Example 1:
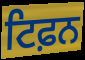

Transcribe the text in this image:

ਟਿਫ਼ਨ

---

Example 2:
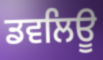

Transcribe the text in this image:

ਡਵਲਿਊ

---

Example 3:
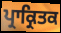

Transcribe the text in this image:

ਪ੍ਰਾਕ੍ਰਿਤਕ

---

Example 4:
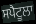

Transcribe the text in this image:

ਸਪੈਟੂਲਾ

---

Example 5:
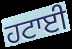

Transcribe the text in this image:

ਹਟਾਈ